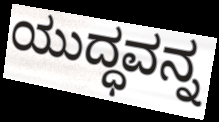
ಯುದ್ಧವನ್ನ